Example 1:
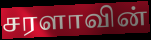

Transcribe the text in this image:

சரளாவின்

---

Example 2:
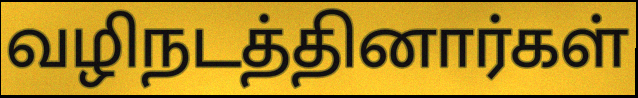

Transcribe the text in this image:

வழிநடத்தினார்கள்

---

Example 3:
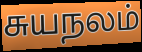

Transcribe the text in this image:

சுயநலம்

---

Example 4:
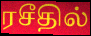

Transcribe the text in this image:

ரசீதில்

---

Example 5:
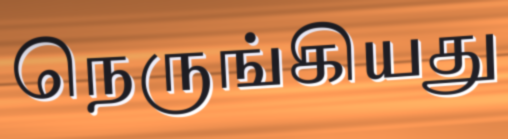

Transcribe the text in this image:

நெருங்கியது